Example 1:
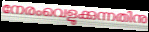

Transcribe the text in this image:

നേരംവെളുക്കുന്നതിനു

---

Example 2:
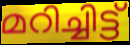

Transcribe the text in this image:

മറിച്ചിട്ട്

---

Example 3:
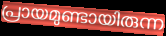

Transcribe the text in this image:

പ്രായമുണ്ടായിരുന്ന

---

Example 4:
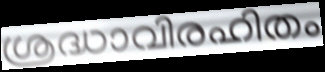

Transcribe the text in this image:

ശ്രദ്ധാവിരഹിതം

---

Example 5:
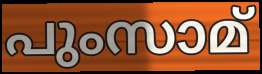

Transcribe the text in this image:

പുംസാമ്